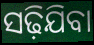
ସଢ଼ିଯିବା